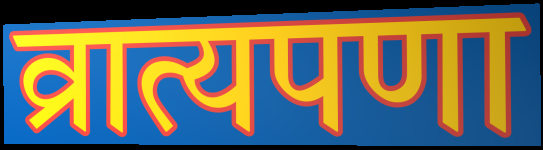
व्रात्यपणा